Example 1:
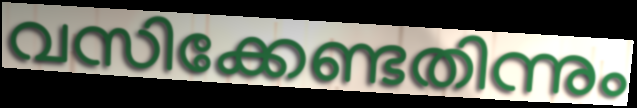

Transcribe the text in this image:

വസിക്കേണ്ടതിന്നും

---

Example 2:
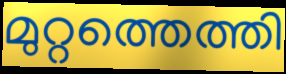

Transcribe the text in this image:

മുറ്റത്തെത്തി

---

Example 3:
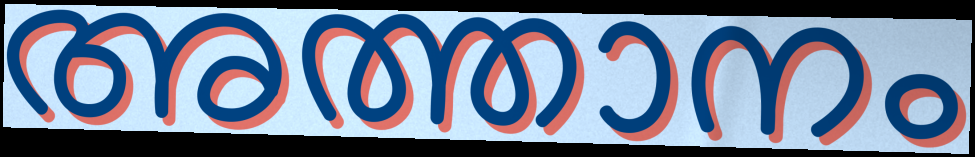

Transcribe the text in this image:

അത്താനം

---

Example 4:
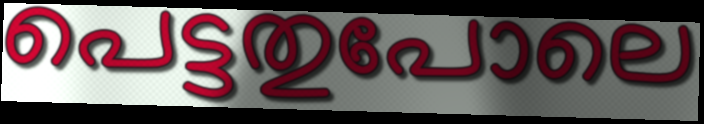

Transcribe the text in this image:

പെട്ടതുപോലെ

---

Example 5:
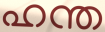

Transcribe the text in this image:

ഹന്ത